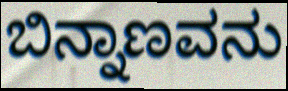
ಬಿನ್ನಾಣವನು